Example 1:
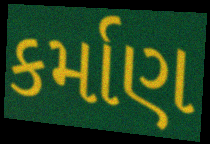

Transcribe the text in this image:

કર્માણ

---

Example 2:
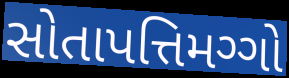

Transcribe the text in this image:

સોતાપત્તિમગ્ગો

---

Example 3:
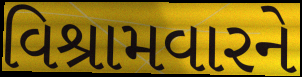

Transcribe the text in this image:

વિશ્રામવારને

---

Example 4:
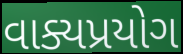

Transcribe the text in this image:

વાક્યપ્રયોગ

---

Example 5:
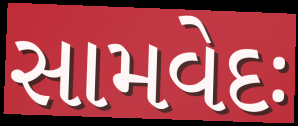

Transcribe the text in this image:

સામવેદઃ